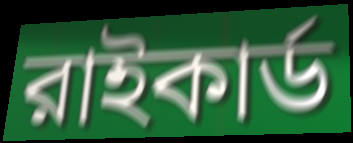
রাইকার্ড